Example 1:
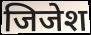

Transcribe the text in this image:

जिजेश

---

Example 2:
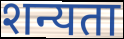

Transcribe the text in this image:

शन्यता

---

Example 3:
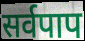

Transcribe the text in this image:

सर्वपाप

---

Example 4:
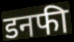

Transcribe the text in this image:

डनफी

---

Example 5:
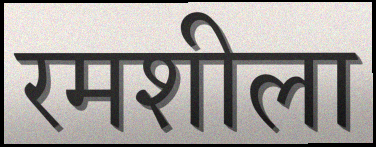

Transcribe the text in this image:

रमशीला